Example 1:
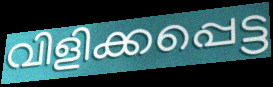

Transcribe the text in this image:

വിളിക്കപ്പെട്ട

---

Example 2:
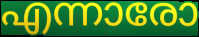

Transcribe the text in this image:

എന്നാരോ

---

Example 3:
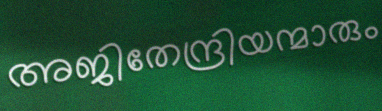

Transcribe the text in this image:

അജിതേന്ദ്രിയന്മാരും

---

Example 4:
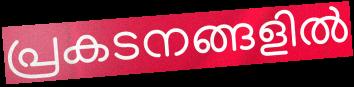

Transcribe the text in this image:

പ്രകടനങ്ങളിൽ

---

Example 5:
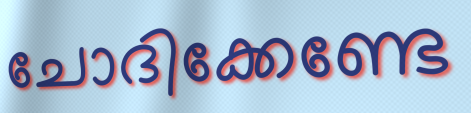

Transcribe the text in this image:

ചോദിക്കേണ്ടേ